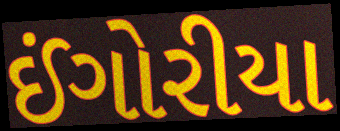
ઈંગોરીયા